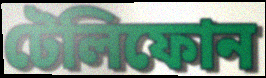
টেলিফোন